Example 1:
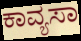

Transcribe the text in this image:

ಕಾವ್ಯಸಾ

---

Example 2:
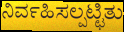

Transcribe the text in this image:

ನಿರ್ವಹಿಸಲ್ಪಟ್ಟಿತು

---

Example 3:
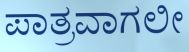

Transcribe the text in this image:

ಪಾತ್ರವಾಗಲೀ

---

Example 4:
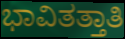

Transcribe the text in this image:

ಭಾವಿತತ್ತಾತಿ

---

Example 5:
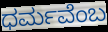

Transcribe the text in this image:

ಧರ್ಮವೆಂಬ